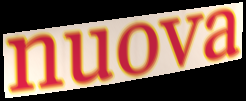
nuova